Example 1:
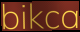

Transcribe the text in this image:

bikca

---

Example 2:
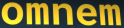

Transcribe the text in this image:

omnem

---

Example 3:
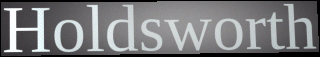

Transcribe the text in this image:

Holdsworth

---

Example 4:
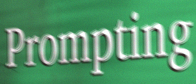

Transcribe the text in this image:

Prompting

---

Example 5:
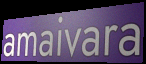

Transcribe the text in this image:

amaivara